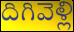
దిగివెళ్లి